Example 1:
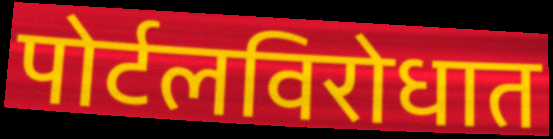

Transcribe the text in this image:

पोर्टलविरोधात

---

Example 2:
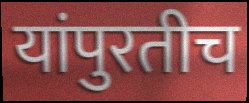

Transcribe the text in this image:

यांपुरतीच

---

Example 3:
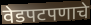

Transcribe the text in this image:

वेडपटपणाचे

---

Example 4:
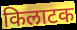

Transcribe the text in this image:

किलाटक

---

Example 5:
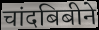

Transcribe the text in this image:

चांदबिबीने